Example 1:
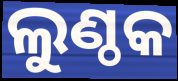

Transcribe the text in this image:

ଲୁଣ୍ଠକ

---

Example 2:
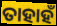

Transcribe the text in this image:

ତାହାହଁ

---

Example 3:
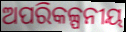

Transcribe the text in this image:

ଅପରିକଳ୍ପନୀୟ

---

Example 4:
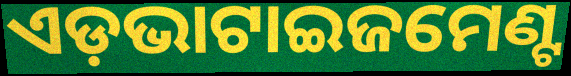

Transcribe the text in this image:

ଏଡ଼ଭାଟାଇଜମେଣ୍ଟ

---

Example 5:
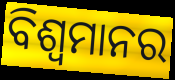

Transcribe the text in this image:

ବିଶ୍ୱମାନର